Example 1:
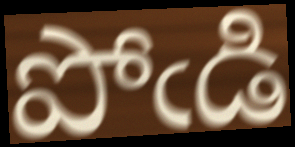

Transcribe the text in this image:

పోఁడి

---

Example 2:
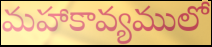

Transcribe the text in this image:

మహాకావ్యములో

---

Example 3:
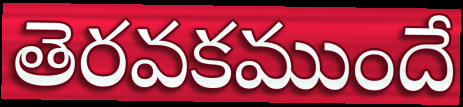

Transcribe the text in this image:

తెరవకముందే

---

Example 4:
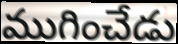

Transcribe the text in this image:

ముగించేడు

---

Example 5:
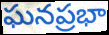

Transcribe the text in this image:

ఘనప్రభా